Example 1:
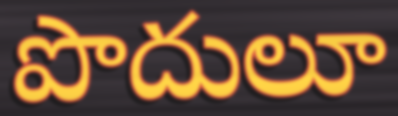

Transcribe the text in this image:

పొదులూ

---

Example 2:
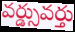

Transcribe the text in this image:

వర్డ్సువర్తు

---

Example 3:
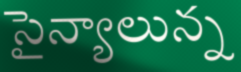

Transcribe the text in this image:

సైన్యాలున్న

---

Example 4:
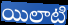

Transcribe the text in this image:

యిలాటి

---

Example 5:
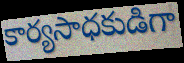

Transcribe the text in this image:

కార్యసాధకుడిగా